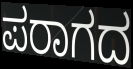
ಪರಾಗದ